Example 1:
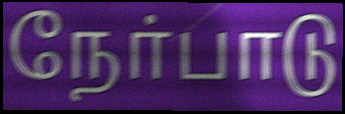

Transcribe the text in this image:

நேர்பாடு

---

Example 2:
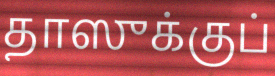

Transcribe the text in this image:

தாஸுக்குப்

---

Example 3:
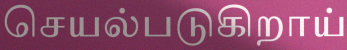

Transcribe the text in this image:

செயல்படுகிறாய்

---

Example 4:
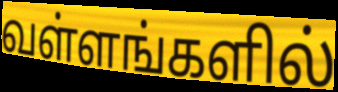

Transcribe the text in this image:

வள்ளங்களில்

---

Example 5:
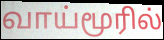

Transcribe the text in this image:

வாய்மூரில்